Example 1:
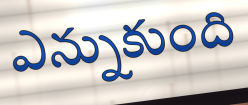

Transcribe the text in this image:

ఎన్నుకుంది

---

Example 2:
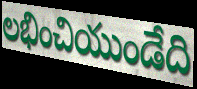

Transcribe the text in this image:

లభించియుండేది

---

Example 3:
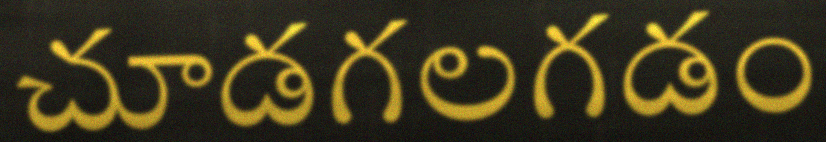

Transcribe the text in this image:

చూడగలగడం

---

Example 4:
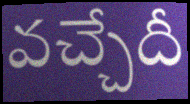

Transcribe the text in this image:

వచ్చేదీ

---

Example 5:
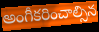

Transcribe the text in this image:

అంగీకరించాల్సిన